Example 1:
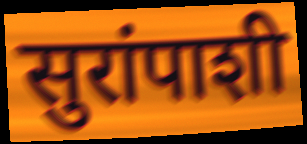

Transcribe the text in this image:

सुरांपाशी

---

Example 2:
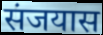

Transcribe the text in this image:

संजयास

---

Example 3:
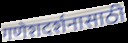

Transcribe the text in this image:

गणेशदर्शनासाठी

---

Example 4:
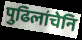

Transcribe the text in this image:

पुढिलांचेनि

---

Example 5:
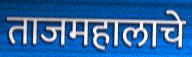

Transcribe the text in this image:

ताजमहालाचे